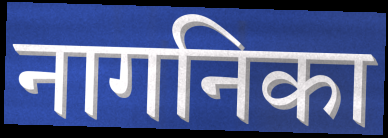
नागनिका